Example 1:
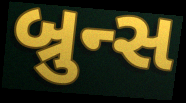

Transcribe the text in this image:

બ્રુન્સ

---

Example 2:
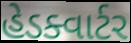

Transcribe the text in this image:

હેડક્વાર્ટર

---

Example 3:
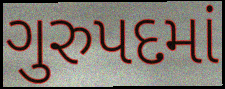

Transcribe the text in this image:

ગુરુપદમાં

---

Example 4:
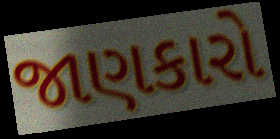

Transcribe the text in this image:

જાણકારો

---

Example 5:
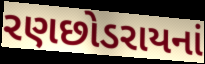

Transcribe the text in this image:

રણછોડરાયનાં